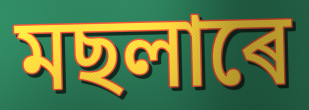
মছলাৰে